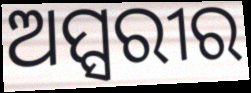
ଅପ୍ସରୀର